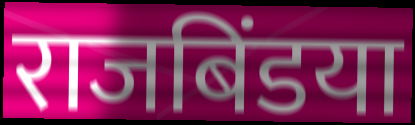
राजबिंडया